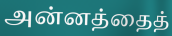
அன்னத்தைத்